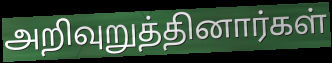
அறிவுறுத்தினார்கள்